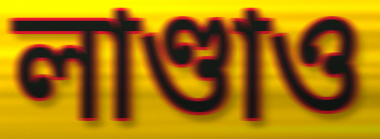
লাণ্ডাও